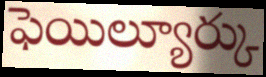
ఫెయిల్యూర్కు